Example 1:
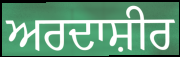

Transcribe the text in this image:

ਅਰਦਾਸ਼ੀਰ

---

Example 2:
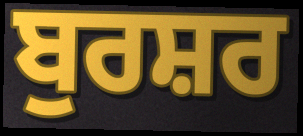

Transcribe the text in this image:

ਬੁਰਸ਼ਰ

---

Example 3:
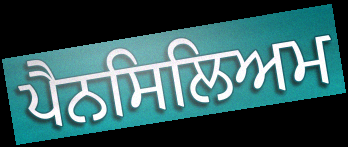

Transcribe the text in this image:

ਪੈਨਸਿਲਿਅਮ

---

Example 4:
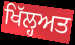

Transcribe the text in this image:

ਖਿੱਲ੍ਹਅਤ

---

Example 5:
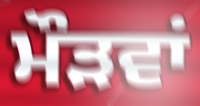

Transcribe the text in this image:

ਮੌੜਵਾਂ